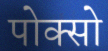
पोक्सो